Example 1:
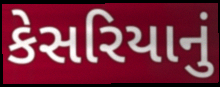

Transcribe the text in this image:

કેસરિયાનું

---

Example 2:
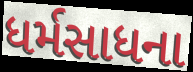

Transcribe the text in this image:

ધર્મસાધના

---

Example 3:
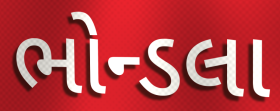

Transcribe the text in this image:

ભોન્ડલા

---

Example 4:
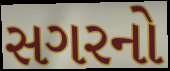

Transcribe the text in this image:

સગરનો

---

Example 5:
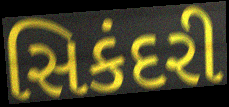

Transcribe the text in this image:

સિકંદરી